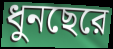
ধুনছেরে